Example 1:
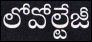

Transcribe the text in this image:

లోవోల్టేజీ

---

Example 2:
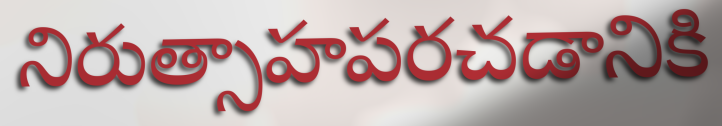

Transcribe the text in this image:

నిరుత్సాహపరచడానికి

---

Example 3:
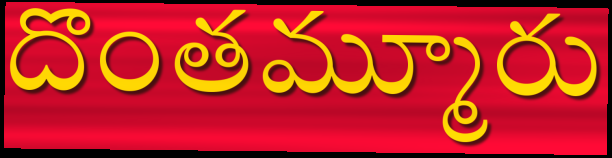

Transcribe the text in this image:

దొంతమ్మూరు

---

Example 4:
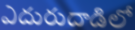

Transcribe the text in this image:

ఎదురుదాడిలో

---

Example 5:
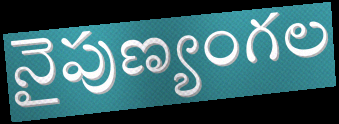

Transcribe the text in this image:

నైపుణ్యంగల